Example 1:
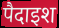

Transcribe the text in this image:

पैदाइश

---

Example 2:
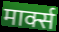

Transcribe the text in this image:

मार्क्स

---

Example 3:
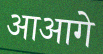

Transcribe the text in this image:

आआगे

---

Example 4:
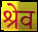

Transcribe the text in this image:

श्रेव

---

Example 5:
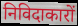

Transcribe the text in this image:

निविदाकारों